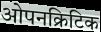
ओपनक्रिटिक